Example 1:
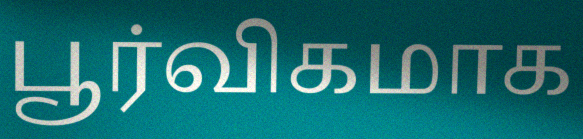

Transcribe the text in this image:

பூர்விகமாக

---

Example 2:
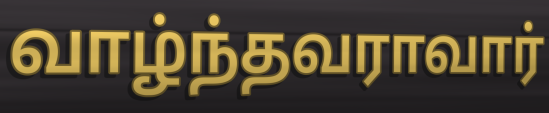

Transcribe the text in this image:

வாழ்ந்தவராவார்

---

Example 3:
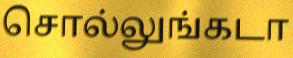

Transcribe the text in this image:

சொல்லுங்கடா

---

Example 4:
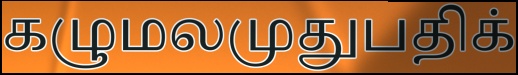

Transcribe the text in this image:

கழுமலமுதுபதிக்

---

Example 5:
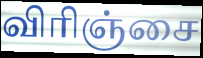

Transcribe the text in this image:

விரிஞ்சை